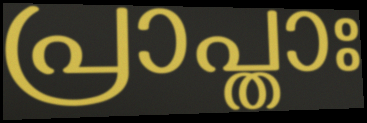
പ്രാപ്താഃ